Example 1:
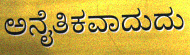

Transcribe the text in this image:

ಅನೈತಿಕವಾದುದು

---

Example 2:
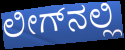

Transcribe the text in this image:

ಲೀಗ್‌ನಲ್ಲಿ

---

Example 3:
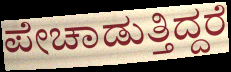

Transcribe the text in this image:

ಪೇಚಾಡುತ್ತಿದ್ದರೆ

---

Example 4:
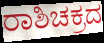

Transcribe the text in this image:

ರಾಶಿಚಕ್ರದ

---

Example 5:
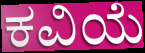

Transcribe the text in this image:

ಕವಿಯೆ